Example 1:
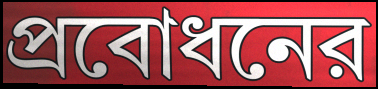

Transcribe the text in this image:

প্রবোধনের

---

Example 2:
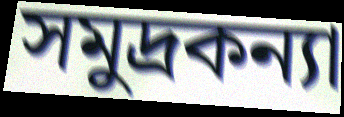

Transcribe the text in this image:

সমুদ্রকন্যা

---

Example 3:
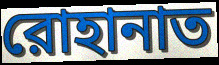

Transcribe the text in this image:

রোহানাত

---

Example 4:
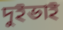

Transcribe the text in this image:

দুইভাই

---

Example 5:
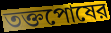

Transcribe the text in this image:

তক্তপোষের